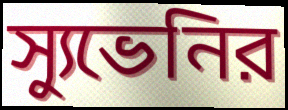
স্যুভেনির